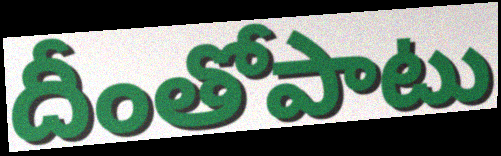
దీంతోపాటు